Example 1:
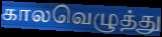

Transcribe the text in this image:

காலவெழுத்து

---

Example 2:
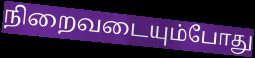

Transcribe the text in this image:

நிறைவடையும்போது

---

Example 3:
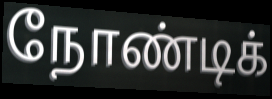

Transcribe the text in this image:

நோண்டிக்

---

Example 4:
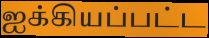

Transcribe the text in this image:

ஐக்கியப்பட்ட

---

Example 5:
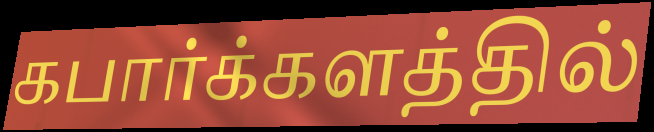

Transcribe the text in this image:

கபார்க்களத்தில்